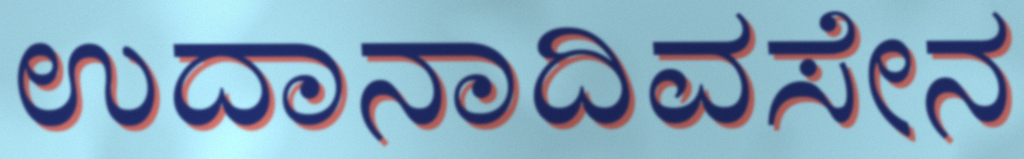
ಉದಾನಾದಿವಸೇನ